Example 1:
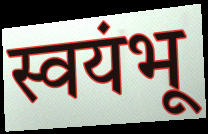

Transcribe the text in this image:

स्वयंभू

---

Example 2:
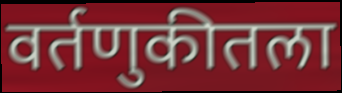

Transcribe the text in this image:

वर्तणुकीतला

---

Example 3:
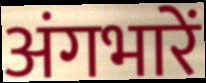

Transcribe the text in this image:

अंगभारें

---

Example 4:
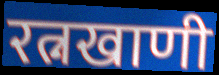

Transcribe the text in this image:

रत्नखाणी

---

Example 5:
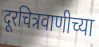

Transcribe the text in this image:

दूरचित्रवाणीच्या